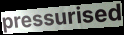
pressurised